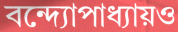
বন্দ্যোপাধ্যায়ও